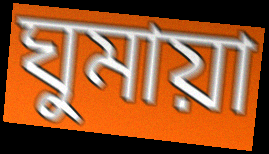
ঘুমায়া